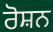
ਰੋਸ਼ਨ